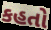
કહતો